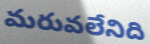
మరువలేనిది